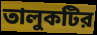
তালুকটির